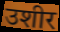
उशीर